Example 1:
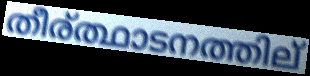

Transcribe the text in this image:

തീര്ത്ഥാടനത്തില്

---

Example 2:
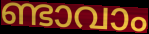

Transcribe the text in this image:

ണ്ടാവാം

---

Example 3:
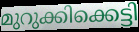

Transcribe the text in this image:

മുറുക്കിക്കെട്ടി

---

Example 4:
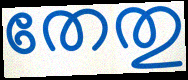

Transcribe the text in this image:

തേതു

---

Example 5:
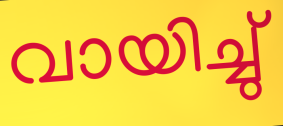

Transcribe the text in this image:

വായിച്ചു്